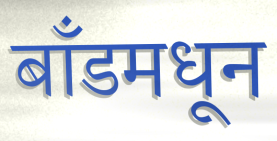
बाँडमधून